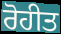
ਰੋਹੀਤ